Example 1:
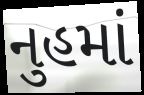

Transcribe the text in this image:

નુહમાં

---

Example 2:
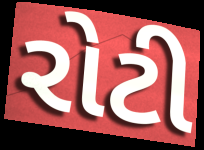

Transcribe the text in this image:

રોટી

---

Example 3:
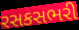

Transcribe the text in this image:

રસકસભરી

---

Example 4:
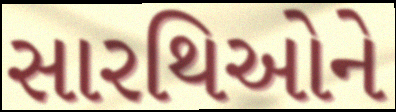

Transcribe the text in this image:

સારથિઓને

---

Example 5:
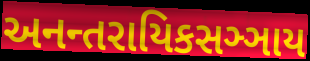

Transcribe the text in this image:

અનન્તરાયિકસઞ્ઞાય